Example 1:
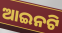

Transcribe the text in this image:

ଆଇନଟି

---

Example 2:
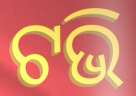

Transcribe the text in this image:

ଟଭି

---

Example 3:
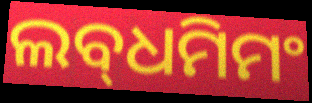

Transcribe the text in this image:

ଲବ୍‌ଧମିମଂ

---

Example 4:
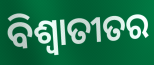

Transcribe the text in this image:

ବିଶ୍ଵାତୀତର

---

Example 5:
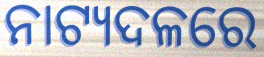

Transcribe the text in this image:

ନାଟ୍ୟଦଳରେ